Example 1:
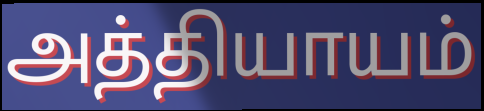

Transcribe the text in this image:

அத்தியாயம்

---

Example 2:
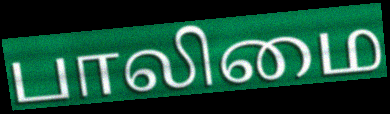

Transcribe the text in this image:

பாலிமை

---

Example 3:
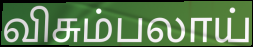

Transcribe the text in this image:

விசும்பலாய்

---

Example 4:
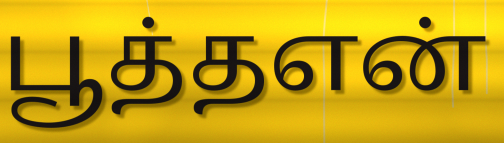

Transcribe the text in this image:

பூத்தஎன்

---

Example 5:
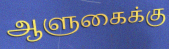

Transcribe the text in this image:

ஆளுகைக்கு